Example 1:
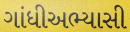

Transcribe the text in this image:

ગાંધીઅભ્યાસી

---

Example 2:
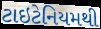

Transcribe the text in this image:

ટાઇટેનિયમથી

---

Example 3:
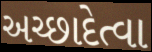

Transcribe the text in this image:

અચ્છાદેત્વા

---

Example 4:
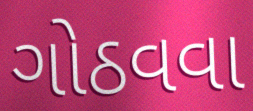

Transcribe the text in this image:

ગોઠવવા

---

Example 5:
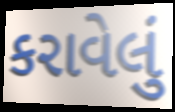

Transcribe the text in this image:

કરાવેલું